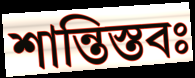
শান্তিস্তবঃ